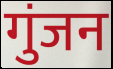
गुंजन